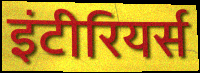
इंटीरियर्स